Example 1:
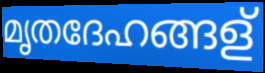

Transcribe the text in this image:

മൃതദേഹങ്ങള്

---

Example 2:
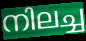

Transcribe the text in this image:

നിലച്ച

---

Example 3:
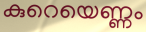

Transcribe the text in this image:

കുറെയെണ്ണം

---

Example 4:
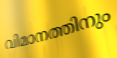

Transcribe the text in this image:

വിമാനത്തിനും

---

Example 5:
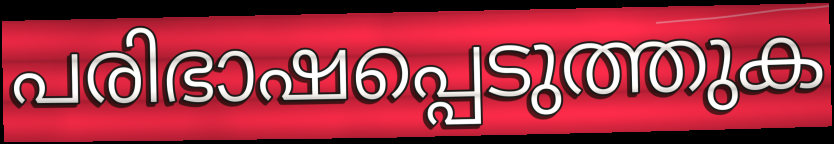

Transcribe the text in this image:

പരിഭാഷപ്പെടുത്തുക